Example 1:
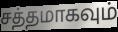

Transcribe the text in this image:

சத்தமாகவும்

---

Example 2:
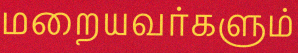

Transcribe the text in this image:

மறையவர்களும்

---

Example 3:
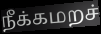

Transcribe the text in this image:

நீக்கமறச்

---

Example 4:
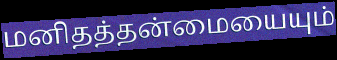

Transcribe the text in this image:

மனிதத்தன்மையையும்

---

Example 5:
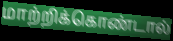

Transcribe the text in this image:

மாற்றிக்கொண்டால்